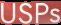
USPs